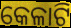
କେଳାଟି